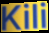
Kili